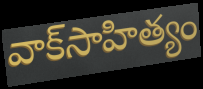
వాక్‌సాహిత్యం